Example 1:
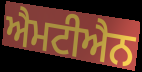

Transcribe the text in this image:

ਐਮਟੀਐਨ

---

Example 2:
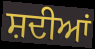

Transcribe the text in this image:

ਸ਼ਦੀਆਂ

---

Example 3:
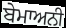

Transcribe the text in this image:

ਬੇਮਾਅਨੀ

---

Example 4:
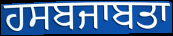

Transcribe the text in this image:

ਹਸਬਜਾਬਤਾ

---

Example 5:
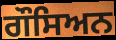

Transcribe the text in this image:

ਗੌਸਿਅਨ